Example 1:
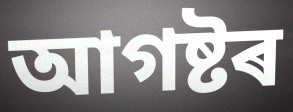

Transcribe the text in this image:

আগষ্টৰ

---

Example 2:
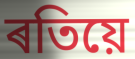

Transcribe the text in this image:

ৰতিয়ে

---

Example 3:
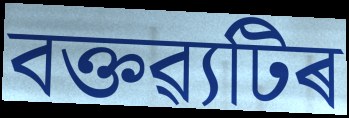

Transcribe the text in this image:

বক্তৱ্যটিৰ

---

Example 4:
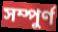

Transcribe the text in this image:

সম্পুৰ্ণ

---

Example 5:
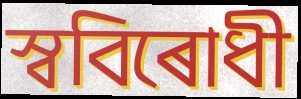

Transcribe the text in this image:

স্ববিৰোধী